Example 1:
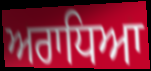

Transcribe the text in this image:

ਅਰਾਧਿਆ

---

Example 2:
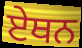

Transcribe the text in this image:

ਏਥਨ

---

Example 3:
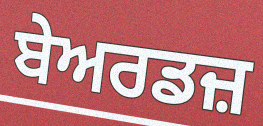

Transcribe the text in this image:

ਬੇਅਰਡਜ਼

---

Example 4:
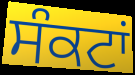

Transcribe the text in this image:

ਸੰਕਟਾਂ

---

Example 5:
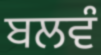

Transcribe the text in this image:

ਬਲਵੰ